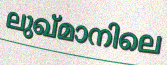
ലുഖ്മാനിലെ